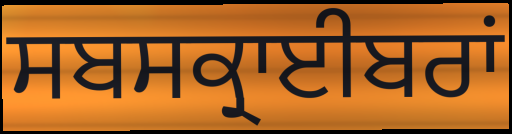
ਸਬਸਕ੍ਰਾਈਬਰਾਂ